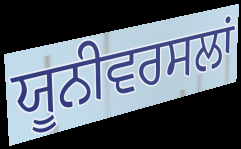
ਯੂਨੀਵਰਸਲਾਂ